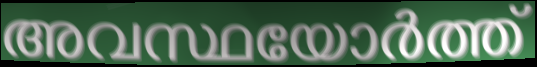
അവസ്ഥയോർത്ത്